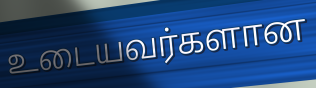
உடையவர்களான